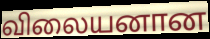
விலையனான